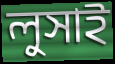
লুসাই